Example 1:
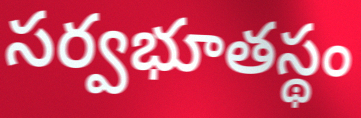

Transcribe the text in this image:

సర్వభూతస్థం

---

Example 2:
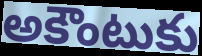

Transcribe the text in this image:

అకౌంటుకు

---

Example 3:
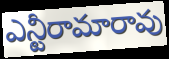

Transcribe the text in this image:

ఎన్టీరామారావు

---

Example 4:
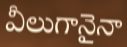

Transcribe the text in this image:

వీలుగానైనా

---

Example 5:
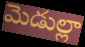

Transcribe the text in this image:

మెడుల్లా